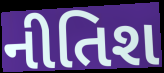
નીતિશ